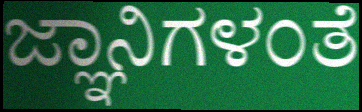
ಜ್ಞಾನಿಗಳಂತೆ